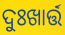
ଦୁଃଖାର୍ତ୍ତ